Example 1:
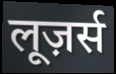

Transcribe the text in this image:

लूज़र्स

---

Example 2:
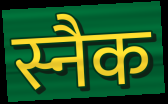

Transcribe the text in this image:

स्नैक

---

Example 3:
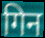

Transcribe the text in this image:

गिन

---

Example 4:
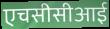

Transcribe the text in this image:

एचसीसीआई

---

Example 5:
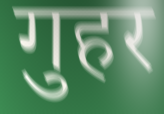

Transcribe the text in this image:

गुहर